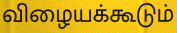
விழையக்கூடும்